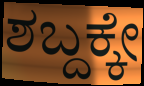
ಶಬ್ದಕ್ಕೇ